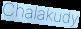
Chalakudy